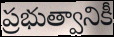
ప్రభుత్వానికీ